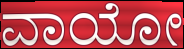
ವಾಯೋ